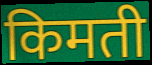
किमती